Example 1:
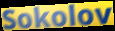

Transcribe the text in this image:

Sokolov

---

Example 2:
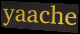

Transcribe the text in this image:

yaache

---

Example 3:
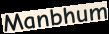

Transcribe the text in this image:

Manbhum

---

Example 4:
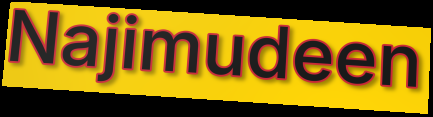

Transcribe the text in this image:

Najimudeen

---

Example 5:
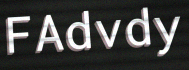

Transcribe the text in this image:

FAdvdy